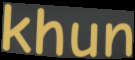
khun